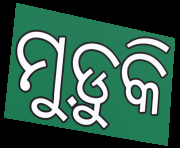
ମୁଡ଼ୁକି